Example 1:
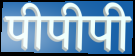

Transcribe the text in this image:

पीपीपी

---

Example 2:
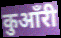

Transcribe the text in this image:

कुआँरी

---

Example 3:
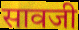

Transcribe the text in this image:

सावजी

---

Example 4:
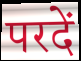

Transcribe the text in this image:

परदें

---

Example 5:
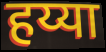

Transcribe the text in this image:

हय्या